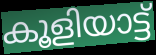
കൂളിയാട്ട്